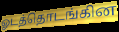
ஓடத்தொடங்கின